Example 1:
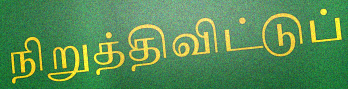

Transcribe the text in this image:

நிறுத்திவிட்டுப்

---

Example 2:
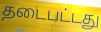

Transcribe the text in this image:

தடைபட்டது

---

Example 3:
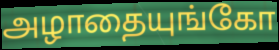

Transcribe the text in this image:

அழாதையுங்கோ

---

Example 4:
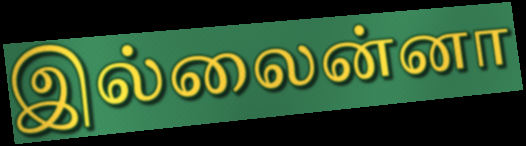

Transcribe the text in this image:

இல்லைன்னா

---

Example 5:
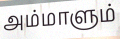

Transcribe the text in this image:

அம்மாளும்